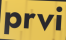
prvi